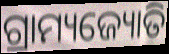
ଗ୍ରାମ୍ୟଜ୍ୟୋତି